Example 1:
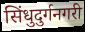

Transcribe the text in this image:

सिंधुदुर्गनगरी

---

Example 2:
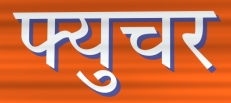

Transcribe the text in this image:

फ्युचर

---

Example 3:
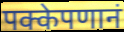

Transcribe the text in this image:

पक्केपणानं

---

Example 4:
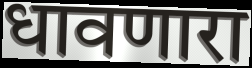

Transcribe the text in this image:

धावणारा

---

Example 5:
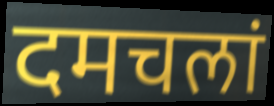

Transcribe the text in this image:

दमचलां